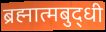
ब्रह्मात्मबुद्धी